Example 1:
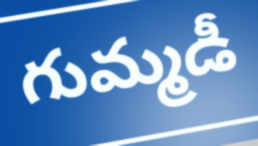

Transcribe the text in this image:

గుమ్మడీ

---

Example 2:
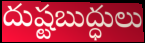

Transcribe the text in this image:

దుష్టబుద్ధులు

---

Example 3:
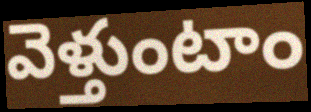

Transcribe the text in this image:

వెళ్తుంటాం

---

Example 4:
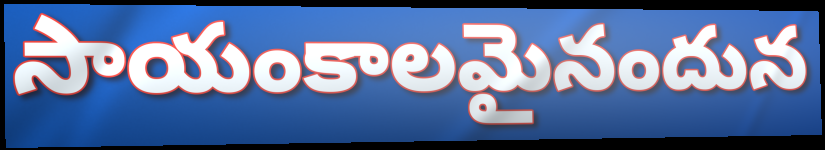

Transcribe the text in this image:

సాయంకాలమైనందున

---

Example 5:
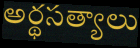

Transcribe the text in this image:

అర్థసత్యాలు